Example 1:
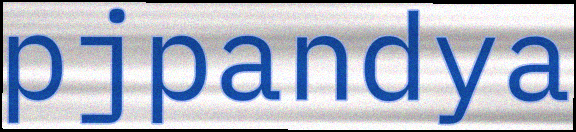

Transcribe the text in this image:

pjpandya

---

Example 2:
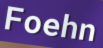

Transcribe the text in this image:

Foehn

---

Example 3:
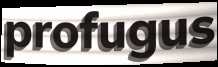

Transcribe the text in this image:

profugus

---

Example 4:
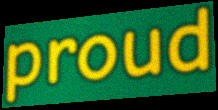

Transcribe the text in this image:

proud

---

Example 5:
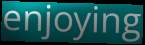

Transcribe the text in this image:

enjoying